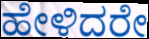
ಹೇಳಿದರೇ